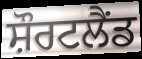
ਸ਼ੌਰਟਲੈਂਡ